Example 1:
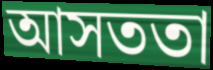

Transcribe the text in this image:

আসততা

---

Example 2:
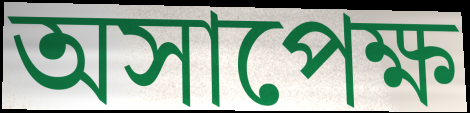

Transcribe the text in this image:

অসাপেক্ষ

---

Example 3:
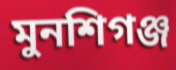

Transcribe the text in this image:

মুনশিগঞ্জ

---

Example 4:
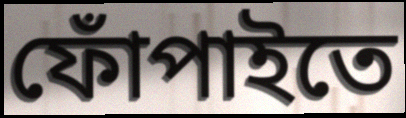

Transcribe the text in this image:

ফোঁপাইতে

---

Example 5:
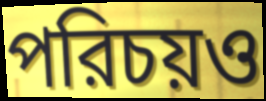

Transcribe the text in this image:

পরিচয়ও